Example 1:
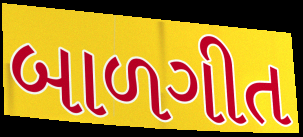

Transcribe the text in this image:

બાળગીત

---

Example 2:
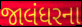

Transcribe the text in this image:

જાલંધરના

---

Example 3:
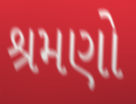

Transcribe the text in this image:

શ્રમણો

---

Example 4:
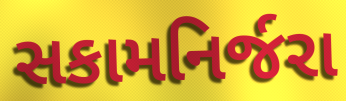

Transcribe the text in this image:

સકામનિર્જરા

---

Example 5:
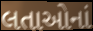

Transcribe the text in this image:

લતાઓનાં